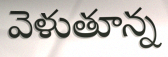
వెళుతూన్న